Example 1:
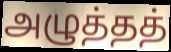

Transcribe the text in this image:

அழுத்தத்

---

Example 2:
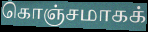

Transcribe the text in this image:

கொஞ்சமாகக்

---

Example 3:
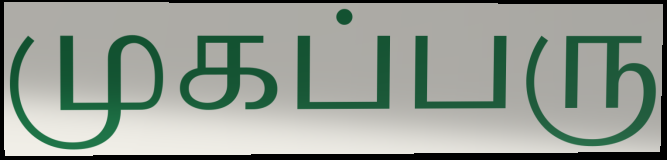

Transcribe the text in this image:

முகப்பரு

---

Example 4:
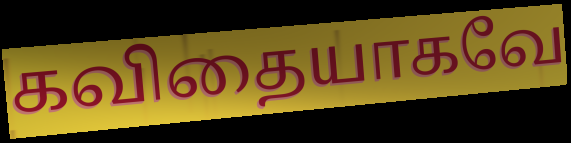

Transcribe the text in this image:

கவிதையாகவே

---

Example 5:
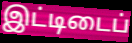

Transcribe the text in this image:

இட்டிடைப்